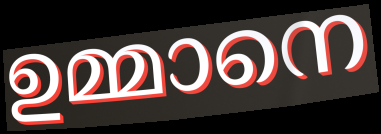
ഉമ്മാനെ